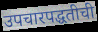
उपचारपद्धतीची